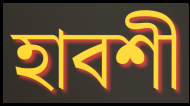
হাবশী